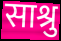
साश्रु